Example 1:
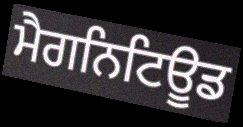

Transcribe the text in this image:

ਮੈਗਨਿਟਿਊਡ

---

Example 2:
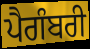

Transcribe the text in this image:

ਪੈਗੰਬਰੀ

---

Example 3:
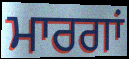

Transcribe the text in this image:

ਮਾਰਗਾਂ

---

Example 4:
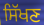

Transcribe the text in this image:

ਸਿੱਖਣ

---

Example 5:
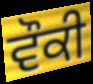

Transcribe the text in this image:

ਵੌਕੀ